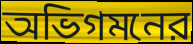
অভিগমনের